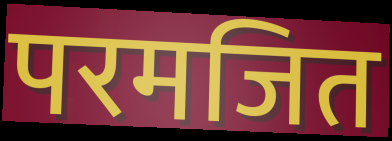
परमजित